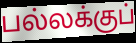
பல்லக்குப்